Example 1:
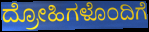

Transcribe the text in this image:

ದ್ರೋಹಿಗಳೊಂದಿಗೆ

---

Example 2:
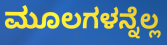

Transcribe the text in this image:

ಮೂಲಗಳನ್ನೆಲ್ಲ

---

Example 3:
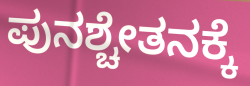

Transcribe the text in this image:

ಪುನಶ್ಚೇತನಕ್ಕೆ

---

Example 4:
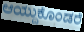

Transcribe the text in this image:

ಆಯ್ದುಕೊಂಡರೆ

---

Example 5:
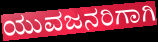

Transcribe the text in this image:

ಯುವಜನರಿಗಾಗಿ